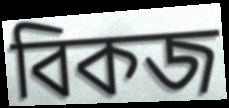
বিকজ